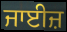
ਜਾਈਜ਼